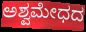
ಅಶ್ವಮೇಧದ